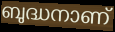
ബുദ്ധനാണ്